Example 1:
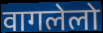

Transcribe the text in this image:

वागलेलो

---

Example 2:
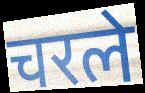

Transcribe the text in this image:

चरले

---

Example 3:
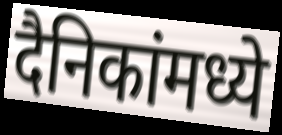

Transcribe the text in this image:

दैनिकांमध्ये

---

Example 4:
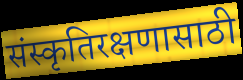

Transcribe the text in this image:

संस्कृतिरक्षणासाठी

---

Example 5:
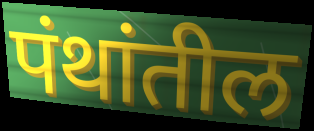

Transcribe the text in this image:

पंथांतील